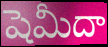
షెమీదా